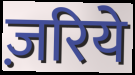
ज़रिये